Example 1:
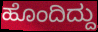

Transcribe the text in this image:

ಹೊಂದಿದ್ದು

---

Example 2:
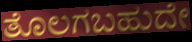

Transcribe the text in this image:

ತೊಲಗಬಹುದೇ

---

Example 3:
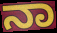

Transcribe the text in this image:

ನಾ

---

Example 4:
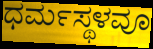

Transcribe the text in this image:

ಧರ್ಮಸ್ಥಳವೂ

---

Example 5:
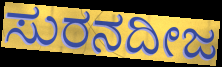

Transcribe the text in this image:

ಸುರನದೀಜ